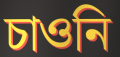
চাওনি